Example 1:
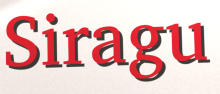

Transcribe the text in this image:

Siragu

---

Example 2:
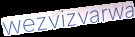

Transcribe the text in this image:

wezvizvarwa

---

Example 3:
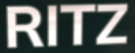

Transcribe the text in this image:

RITZ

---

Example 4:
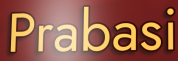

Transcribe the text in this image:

Prabasi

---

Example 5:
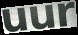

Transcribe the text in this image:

uur